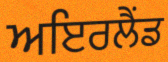
ਅਇਰਲੈਂਡ